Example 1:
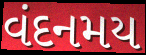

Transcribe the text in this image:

વંદનમય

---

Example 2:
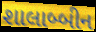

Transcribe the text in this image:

શાલાબ્બીન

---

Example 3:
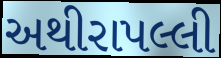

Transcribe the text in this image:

અથીરાપલ્લી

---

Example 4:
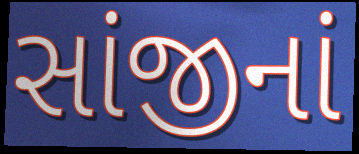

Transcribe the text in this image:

સાંજીનાં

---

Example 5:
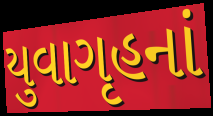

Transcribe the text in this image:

યુવાગૃહનાં